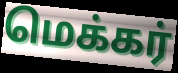
மெக்கர்